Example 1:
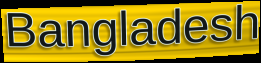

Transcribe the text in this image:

Bangladesh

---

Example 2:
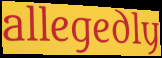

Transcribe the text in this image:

allegedly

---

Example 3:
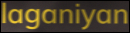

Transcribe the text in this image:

laganiyan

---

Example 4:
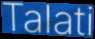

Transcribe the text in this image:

Talati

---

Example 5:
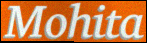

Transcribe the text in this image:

Mohita